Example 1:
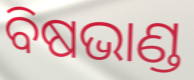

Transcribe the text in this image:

ବିଷଭାଣ୍ଡ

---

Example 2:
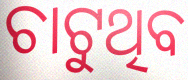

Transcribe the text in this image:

ଚାଟୁଥିବ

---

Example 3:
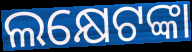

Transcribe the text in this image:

ଲକ୍ଷେଟଙ୍କା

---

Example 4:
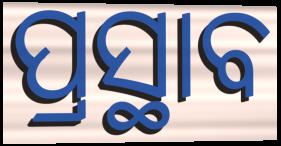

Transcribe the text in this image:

ପ୍ରସ୍ଥାବ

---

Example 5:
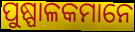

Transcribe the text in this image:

ପୁଷ୍ପାଳକମାନେ